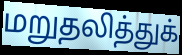
மறுதலித்துக்